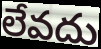
లేవదు